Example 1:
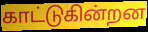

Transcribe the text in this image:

காட்டுகின்றன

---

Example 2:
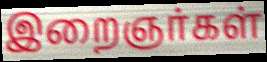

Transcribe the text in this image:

இறைஞர்கள்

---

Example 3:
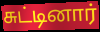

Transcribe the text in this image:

சுட்டினார்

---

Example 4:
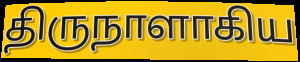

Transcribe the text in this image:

திருநாளாகிய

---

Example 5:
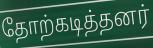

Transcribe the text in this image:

தோற்கடித்தனர்